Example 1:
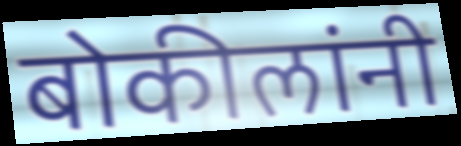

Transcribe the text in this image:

बोकीलांनी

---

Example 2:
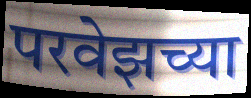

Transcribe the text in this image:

परवेझच्या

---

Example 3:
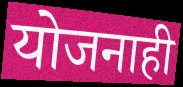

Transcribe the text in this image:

योजनाही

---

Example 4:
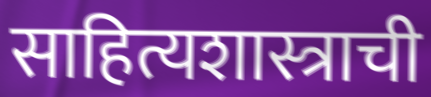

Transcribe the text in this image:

साहित्यशास्त्राची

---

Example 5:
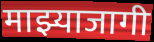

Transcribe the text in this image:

माझ्याजागी